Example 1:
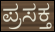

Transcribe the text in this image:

ಪ್ರಸಕ್ತ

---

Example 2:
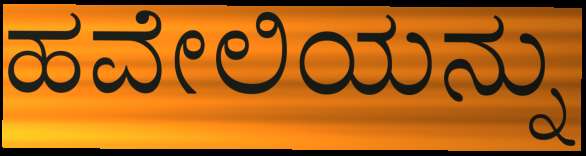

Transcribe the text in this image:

ಹವೇಲಿಯನ್ನು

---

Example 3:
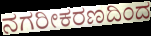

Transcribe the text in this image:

ನಗರೀಕರಣದಿಂದ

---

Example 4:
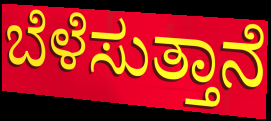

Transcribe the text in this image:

ಬೆಳೆಸುತ್ತಾನೆ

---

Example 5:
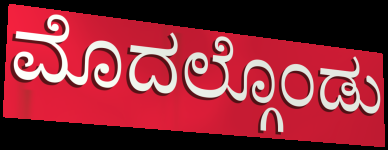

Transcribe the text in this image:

ಮೊದಲ್ಗೊಂಡು